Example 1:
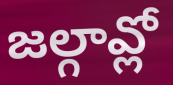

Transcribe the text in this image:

జల్గావ్లో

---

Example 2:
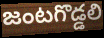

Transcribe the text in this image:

జంటగొడ్డలి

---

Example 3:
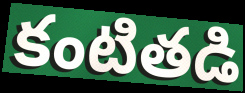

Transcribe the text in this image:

కంటితడి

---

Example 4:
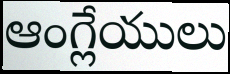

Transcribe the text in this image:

ఆంగ్లేయులు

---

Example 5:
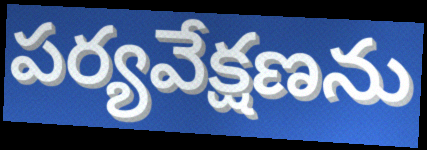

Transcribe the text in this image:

పర్యవేక్షణను